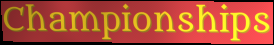
Championships